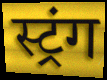
स्ट्रंग